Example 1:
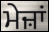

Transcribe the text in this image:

ਮੇਜ਼ਾਂ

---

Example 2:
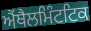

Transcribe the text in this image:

ਐਂਥੈਲਮਿੰਟਟਿਕ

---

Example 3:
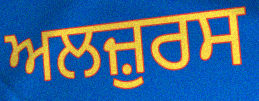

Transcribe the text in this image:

ਅਲਜ਼ੁਰਸ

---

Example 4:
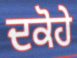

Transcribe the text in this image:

ਦਕੋਹੇ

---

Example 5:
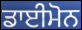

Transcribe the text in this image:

ਡਾਈਮੋਨ